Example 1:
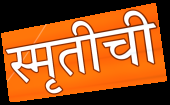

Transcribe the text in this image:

स्मृतीची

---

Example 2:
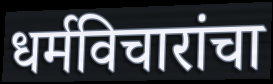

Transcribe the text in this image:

धर्मविचारांचा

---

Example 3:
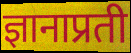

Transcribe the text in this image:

ज्ञानाप्रती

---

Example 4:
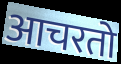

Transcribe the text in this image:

आचरतो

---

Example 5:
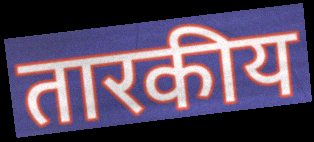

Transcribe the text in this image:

तारकीय